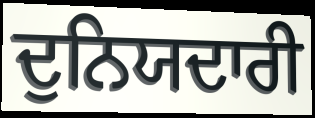
ਦੁਨਿਯਦਾਰੀ